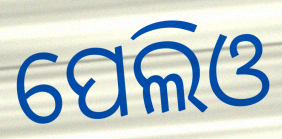
ପେଲିଓ